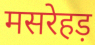
मसरेहड़